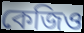
কেজিও